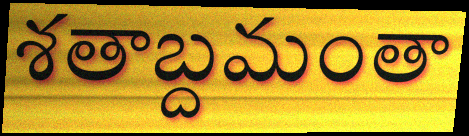
శతాబ్దమంతా